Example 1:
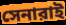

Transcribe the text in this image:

সেনারাই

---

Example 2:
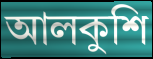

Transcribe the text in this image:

আলকুশি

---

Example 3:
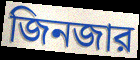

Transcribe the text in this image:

জিনজার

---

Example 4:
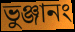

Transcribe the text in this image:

ভুঞ্জানং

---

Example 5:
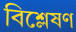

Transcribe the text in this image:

বিশ্লেষণ